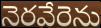
నెరవేరెను